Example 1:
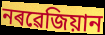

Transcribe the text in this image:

নৰৱেজিয়ান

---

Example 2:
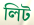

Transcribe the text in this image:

লিট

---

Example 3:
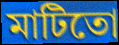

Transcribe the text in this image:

মাটিতো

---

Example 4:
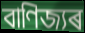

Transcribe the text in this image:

বাণিজ্যৰ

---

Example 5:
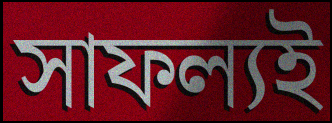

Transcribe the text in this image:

সাফল্যই